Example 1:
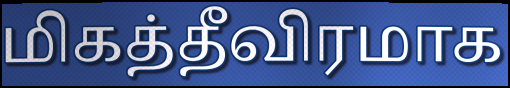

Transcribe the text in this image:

மிகத்தீவிரமாக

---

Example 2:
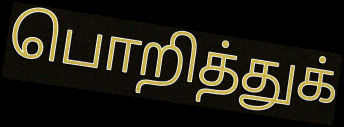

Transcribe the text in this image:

பொறித்துக்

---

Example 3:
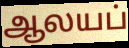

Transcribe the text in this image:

ஆலயப்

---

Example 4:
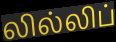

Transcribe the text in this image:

லில்லிப்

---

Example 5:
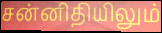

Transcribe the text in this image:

சன்னிதியிலும்